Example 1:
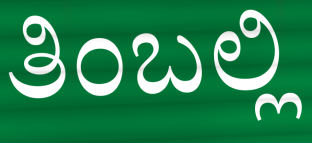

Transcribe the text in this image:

ತಿಂಬಲ್ಲಿ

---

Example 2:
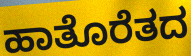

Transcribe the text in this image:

ಹಾತೊರೆತದ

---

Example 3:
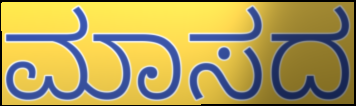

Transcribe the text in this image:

ಮಾಸದ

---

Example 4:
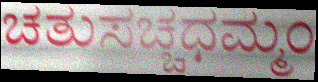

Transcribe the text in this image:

ಚತುಸಚ್ಚಧಮ್ಮಂ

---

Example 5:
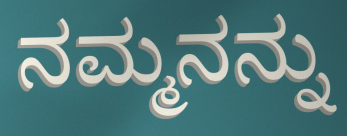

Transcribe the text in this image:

ನಮ್ಮನನ್ನು